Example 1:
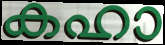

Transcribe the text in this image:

കഹാ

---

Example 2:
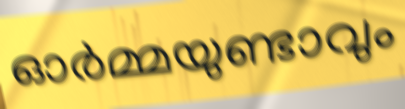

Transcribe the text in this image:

ഓർമ്മയുണ്ടാവും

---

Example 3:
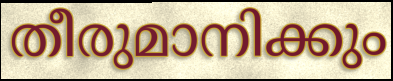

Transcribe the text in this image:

തീരുമാനിക്കും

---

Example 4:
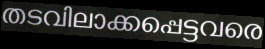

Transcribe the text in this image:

തടവിലാക്കപ്പെട്ടവരെ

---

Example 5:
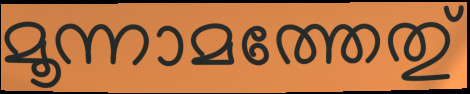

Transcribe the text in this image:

മൂന്നാമത്തേതു്